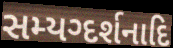
સમ્યગ્દર્શનાદિ